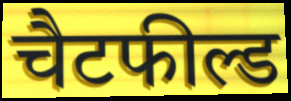
चैटफील्ड